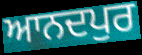
ਆਨਦਪੁਰ